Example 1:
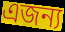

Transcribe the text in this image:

এজন্য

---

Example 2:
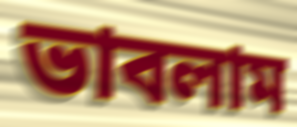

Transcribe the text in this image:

ভাবলাম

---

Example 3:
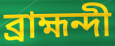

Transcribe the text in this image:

ব্রাহ্মন্দী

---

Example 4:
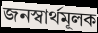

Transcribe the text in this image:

জনস্বার্থমূলক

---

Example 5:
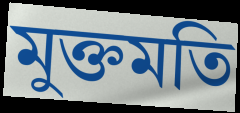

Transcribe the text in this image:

মুক্তমতি